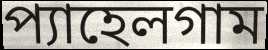
প্যাহেলগাম